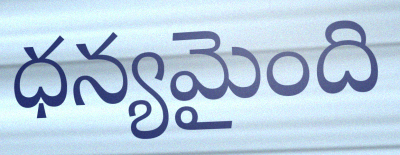
ధన్యమైంది